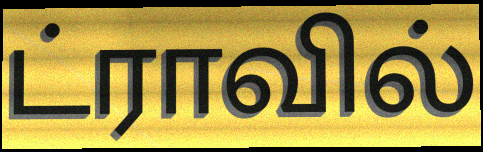
ட்ராவில்